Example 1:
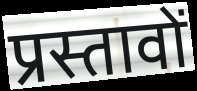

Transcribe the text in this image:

प्रस्तावों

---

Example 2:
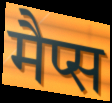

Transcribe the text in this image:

मैप्स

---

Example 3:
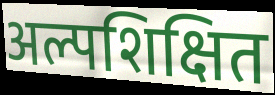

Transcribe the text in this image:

अल्पशिक्षित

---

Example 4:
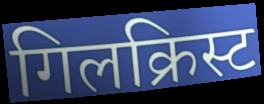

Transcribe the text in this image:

गिलक्रिस्ट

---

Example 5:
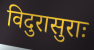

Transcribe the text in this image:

विदुरासुराः